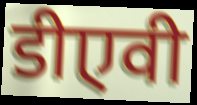
डीएवी